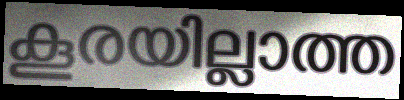
കൂരയില്ലാത്ത